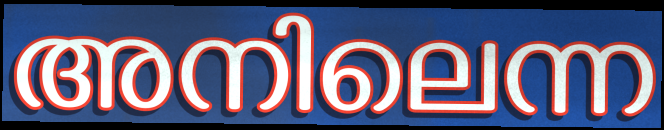
അനിലെന്ന